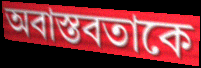
অবাস্তবতাকে